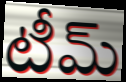
టీమ్